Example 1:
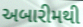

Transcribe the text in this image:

અબારીમથી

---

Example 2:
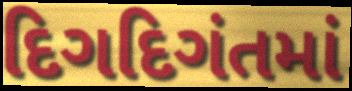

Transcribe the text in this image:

દિગદિગંતમાં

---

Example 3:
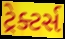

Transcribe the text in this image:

ટ્રેક્ટર્સ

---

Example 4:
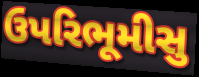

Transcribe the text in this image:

ઉપરિભૂમીસુ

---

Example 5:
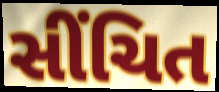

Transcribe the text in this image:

સીંચિત